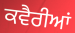
ਕਵੈਰੀਆਂ